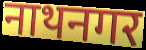
नाथनगर